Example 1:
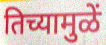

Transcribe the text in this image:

तिच्यामुळें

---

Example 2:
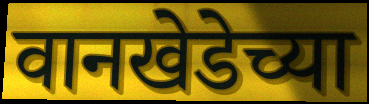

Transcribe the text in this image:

वानखेडेच्या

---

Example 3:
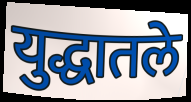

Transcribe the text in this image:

युद्धातले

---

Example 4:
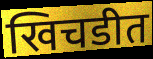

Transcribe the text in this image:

खिचडीत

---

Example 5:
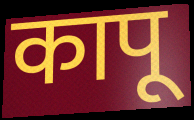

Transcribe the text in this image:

कापू